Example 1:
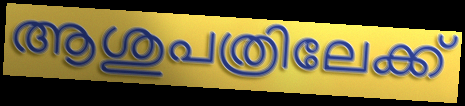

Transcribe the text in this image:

ആശുപത്രിലേക്ക്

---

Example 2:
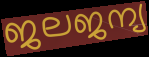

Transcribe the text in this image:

ജലജന്യ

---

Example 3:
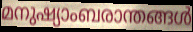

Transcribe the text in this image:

മനുഷ്യാംബരാന്തങ്ങൾ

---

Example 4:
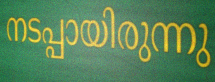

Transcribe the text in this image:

നടപ്പായിരുന്നു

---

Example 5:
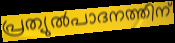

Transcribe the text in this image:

പ്രത്യുൽപാദനത്തിന്